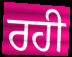
ਰਹੀ